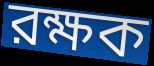
রক্ষক